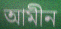
আমীন